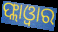
ଫ୍ଲାଓ୍ବାର